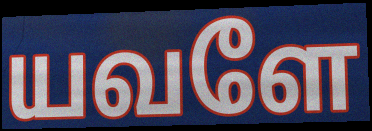
யவளே